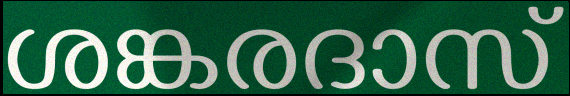
ശങ്കരദാസ്